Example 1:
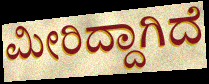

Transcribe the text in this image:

ಮೀರಿದ್ದಾಗಿದೆ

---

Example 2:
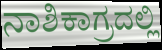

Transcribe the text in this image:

ನಾಶಿಕಾಗ್ರದಲ್ಲಿ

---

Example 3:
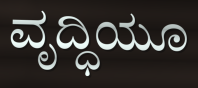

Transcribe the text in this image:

ವೃದ್ಧಿಯೂ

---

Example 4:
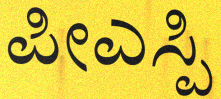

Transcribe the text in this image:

ಪೀಎಸ್ಪಿ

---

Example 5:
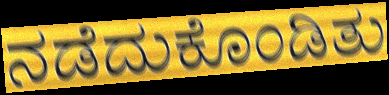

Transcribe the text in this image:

ನಡೆದುಕೊಂಡಿತು